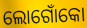
ଲୋଗୋଁକୋ